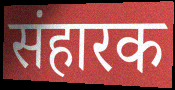
संहारक